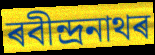
ৰবীন্দ্ৰনাথৰ